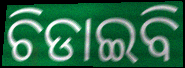
ଚିଡାଇବି